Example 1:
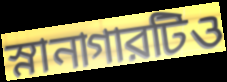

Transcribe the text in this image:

স্নানাগারটিও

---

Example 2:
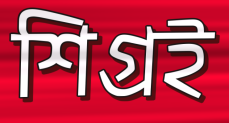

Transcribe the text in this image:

শিগ্রই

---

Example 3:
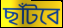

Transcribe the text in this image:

ছাঁটবে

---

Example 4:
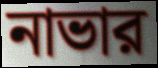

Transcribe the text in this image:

নাভার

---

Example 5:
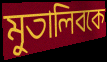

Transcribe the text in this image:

মুতালিবকে